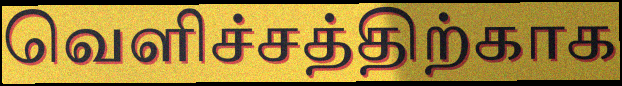
வெளிச்சத்திற்காக